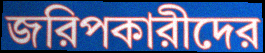
জরিপকারীদের